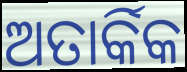
ଅତାର୍କିକ